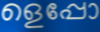
ളെപ്പോ